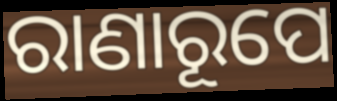
ରାଣାରୂପେ